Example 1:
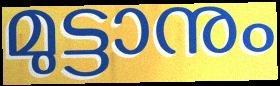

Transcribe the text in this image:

മുട്ടാനും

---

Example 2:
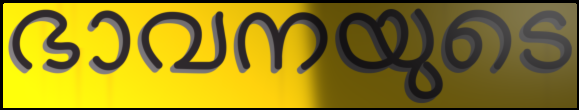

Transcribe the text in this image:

ഭാവനയുടെ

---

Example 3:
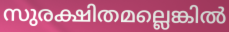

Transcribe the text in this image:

സുരക്ഷിതമല്ലെങ്കിൽ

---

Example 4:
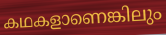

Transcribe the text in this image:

കഥകളാണെങ്കിലും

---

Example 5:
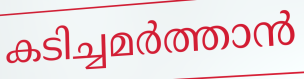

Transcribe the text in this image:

കടിച്ചമർത്താൻ